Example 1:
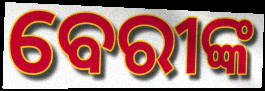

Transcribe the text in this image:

ବେରୀଙ୍କ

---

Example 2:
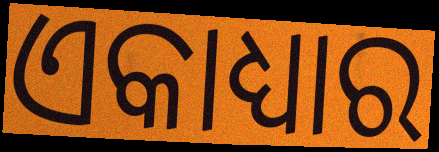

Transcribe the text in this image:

ଏକାଧ୍ୟାର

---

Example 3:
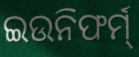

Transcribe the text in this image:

ଇଉନିଫର୍ମ୍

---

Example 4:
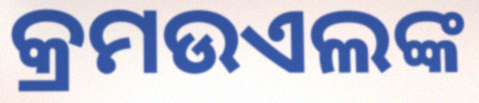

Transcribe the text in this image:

କ୍ରମଉଏଲଙ୍କ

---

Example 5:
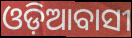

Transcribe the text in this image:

ଓଡ଼ିଆବାସୀ